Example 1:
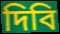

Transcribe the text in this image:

দিবি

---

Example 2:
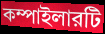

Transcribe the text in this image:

কম্পাইলারটি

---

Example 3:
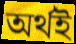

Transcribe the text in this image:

অর্থই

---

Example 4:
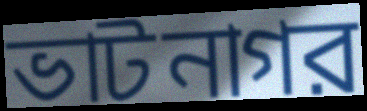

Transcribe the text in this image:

ভাটনাগর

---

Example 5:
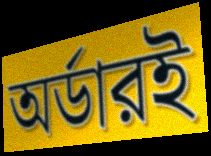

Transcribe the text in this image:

অর্ডারই